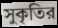
সুকৃতির